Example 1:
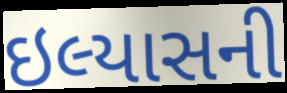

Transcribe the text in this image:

ઇલ્યાસની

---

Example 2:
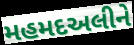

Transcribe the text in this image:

મહમદઅલીને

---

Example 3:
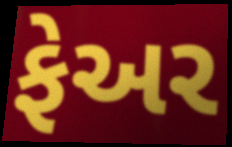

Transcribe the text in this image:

ફેઅર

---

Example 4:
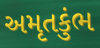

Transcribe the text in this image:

અમૃતકુંભ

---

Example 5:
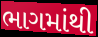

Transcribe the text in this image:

ભાગમાંથી